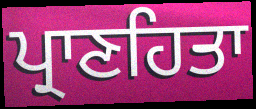
ਪ੍ਰਾਣਹਿਤਾ